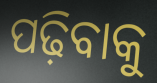
ପଢ଼ିବାକୁ